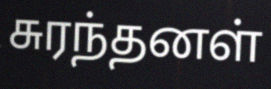
சுரந்தனள்